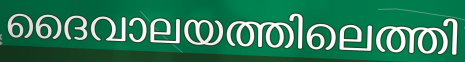
ദൈവാലയത്തിലെത്തി